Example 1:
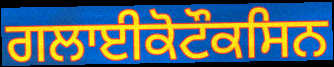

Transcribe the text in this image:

ਗਲਾਈਕੋਟੌਕਸਿਨ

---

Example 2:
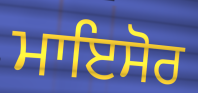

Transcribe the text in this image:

ਮਾਇਸੋਰ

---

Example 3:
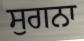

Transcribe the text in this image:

ਸੁਗਨਾ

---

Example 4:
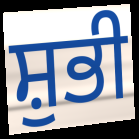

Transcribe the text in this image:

ਸ਼ੁਭੀ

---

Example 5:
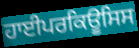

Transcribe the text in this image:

ਹਾਈਪਰਕਿਊਸਿਸ